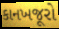
કાનખજૂરો